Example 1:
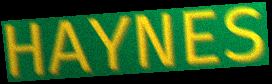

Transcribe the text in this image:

HAYNES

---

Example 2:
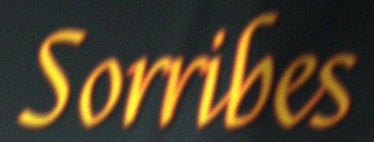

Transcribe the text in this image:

Sorribes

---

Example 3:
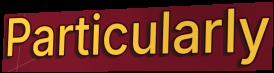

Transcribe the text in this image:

Particularly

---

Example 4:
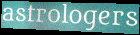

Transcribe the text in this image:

astrologers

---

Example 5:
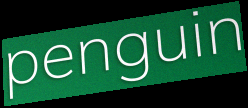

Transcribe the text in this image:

penguin